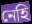
নেহি